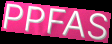
PPFAS